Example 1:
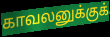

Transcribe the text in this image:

காவலனுக்குக்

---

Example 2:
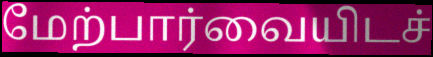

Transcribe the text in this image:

மேற்பார்வையிடச்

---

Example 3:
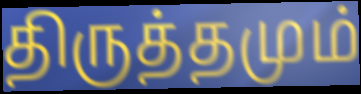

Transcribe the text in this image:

திருத்தமும்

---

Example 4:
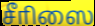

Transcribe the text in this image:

சீரிஸை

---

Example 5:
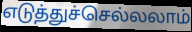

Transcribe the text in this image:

எடுத்துச்செல்லலாம்